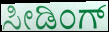
ಸೀಡಿಂಗ್